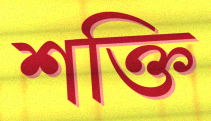
শক্তি